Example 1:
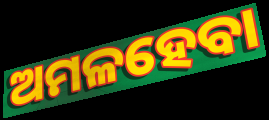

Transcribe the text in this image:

ଅମଳହେବା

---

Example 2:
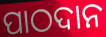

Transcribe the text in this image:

ପାଠଦାନ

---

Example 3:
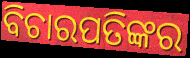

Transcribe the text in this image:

ବିଚାରପତିଙ୍କର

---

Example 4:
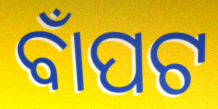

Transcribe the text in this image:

ବାଁପଟ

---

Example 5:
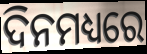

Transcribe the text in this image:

ଦିନମଧ୍ୟରେ